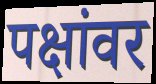
पक्षांवर